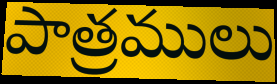
పాత్రములు